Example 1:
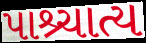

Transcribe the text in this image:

પાશ્ર્ચાત્ય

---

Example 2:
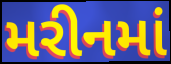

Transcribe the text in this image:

મરીનમાં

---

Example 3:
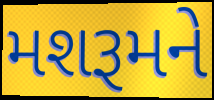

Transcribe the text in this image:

મશરૂમને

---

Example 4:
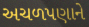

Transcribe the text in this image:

અચળપણાને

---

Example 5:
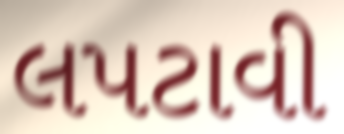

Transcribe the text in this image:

લપટાવી